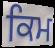
ਕਿਮ